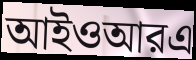
আইওআরএ